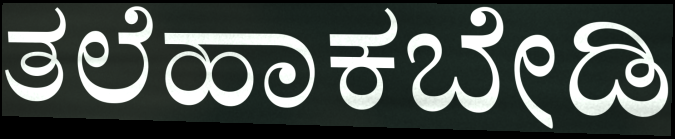
ತಲೆಹಾಕಬೇಡಿ